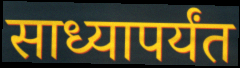
साध्यापर्यंत